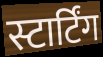
स्टार्टिंग